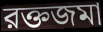
রক্তজমা